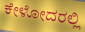
ಕೇಳೋದರಲ್ಲಿ